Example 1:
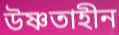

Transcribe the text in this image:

উষ্ণতাহীন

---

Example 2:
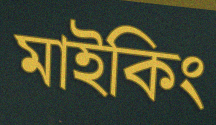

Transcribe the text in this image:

মাইকিং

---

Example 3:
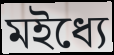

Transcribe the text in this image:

মইধ্যে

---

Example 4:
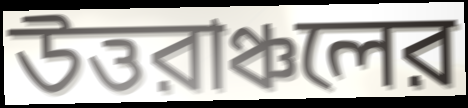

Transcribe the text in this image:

উত্তরাঞ্চলের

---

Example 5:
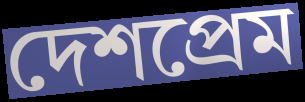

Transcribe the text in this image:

দেশপ্রেম